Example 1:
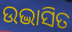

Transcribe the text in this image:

ଉଦ୍ଭାସିତ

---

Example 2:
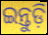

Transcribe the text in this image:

ଇନ୍ତୁଡ଼ି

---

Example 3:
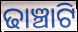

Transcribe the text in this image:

ଢାଞ୍ଚାଟି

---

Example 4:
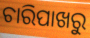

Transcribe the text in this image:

ଚାରିପାଖରୁ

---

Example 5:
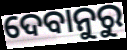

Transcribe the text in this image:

ଦେବାନୁରୁ